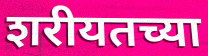
शरीयतच्या